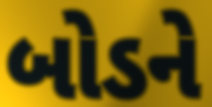
બોડને